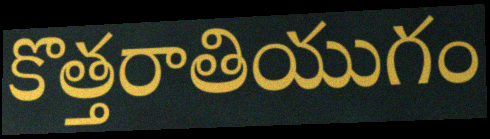
కొత్తరాతియుగం